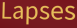
Lapses